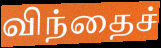
விந்தைச்